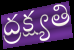
ద్రక్ష్యతి